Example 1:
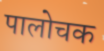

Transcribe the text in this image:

पालोचक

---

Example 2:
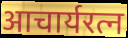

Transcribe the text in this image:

आचार्यरत्न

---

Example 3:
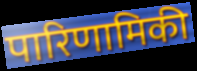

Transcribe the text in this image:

पारिणामिकी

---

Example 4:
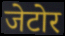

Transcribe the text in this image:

जेटोर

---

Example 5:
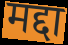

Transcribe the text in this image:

मद्दा